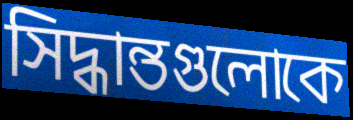
সিদ্ধান্তগুলোকে